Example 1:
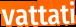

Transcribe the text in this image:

vattati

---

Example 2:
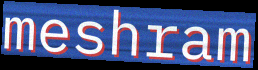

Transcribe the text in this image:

meshram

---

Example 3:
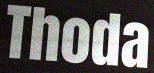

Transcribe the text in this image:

Thoda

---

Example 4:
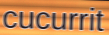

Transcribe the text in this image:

cucurrit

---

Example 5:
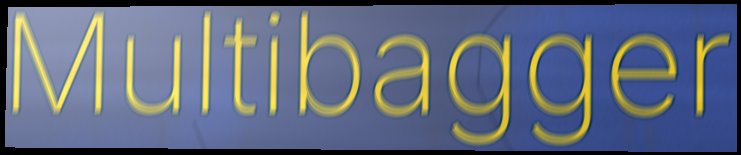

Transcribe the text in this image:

Multibagger